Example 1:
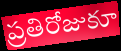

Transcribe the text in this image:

ప్రతిరోజుకూ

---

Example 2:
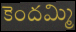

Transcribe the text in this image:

కెందమ్మి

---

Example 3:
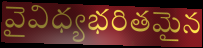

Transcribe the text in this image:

వైవిధ్యభరితమైన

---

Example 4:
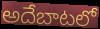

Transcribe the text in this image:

అదేబాటలో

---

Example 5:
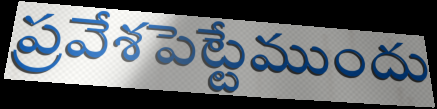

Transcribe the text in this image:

ప్రవేశపెట్టేముందు